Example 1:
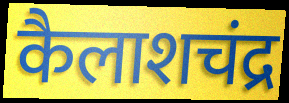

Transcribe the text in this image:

कैलाशचंद्र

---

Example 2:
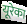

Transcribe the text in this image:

यूरेका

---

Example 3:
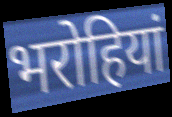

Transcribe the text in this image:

भरोहियां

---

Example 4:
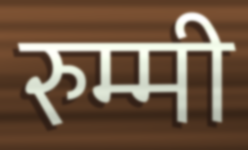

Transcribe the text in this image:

रुम्मी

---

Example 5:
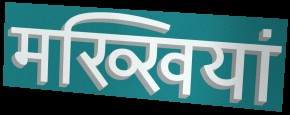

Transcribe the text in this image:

मख्खियां